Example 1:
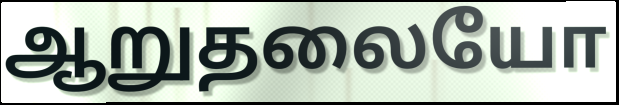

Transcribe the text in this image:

ஆறுதலையோ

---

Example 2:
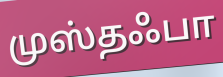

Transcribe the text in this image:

முஸ்தஃபா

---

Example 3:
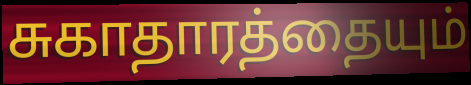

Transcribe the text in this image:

சுகாதாரத்தையும்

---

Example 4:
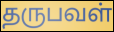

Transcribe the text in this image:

தருபவள்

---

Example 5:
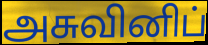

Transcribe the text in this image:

அசுவினிப்